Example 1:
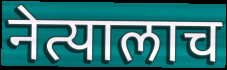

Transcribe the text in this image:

नेत्यालाच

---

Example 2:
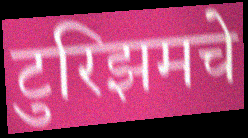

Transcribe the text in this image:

टुरिझमचे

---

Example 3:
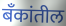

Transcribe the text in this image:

बॅंकांतील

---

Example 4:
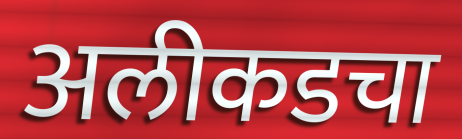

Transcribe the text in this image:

अलीकडचा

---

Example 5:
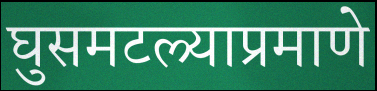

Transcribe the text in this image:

घुसमटल्याप्रमाणे